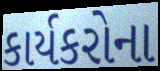
કાર્યકરોના